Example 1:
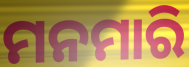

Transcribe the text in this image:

ମନମାରି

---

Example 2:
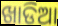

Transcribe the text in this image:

ଖାଡିଆ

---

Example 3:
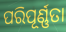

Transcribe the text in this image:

ପରିପୂର୍ଣ୍ଣତା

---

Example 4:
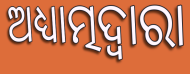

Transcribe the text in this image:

ଅଧ୍ୟାତ୍ମଦ୍ୱାରା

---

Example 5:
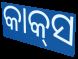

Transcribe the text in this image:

କାକ୍‌ସ